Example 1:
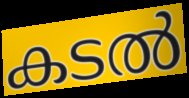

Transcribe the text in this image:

കടൽ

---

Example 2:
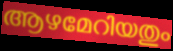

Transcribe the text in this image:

ആഴമേറിയതും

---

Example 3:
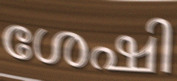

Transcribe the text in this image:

ശേഷി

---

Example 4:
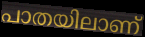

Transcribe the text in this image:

പാതയിലാണ്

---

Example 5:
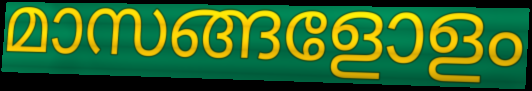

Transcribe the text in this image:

മാസങ്ങളോളം